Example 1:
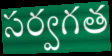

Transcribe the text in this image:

సర్వగత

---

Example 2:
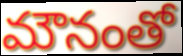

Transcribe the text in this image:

మౌనంతో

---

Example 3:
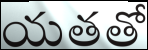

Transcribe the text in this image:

యతతో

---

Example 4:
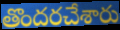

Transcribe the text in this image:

తొందరచేశారు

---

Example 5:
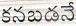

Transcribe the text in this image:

కనబడనే